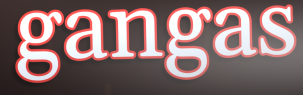
gangas